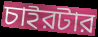
চাইরটার